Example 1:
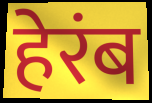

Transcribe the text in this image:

हेरंब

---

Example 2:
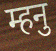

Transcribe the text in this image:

म्हनु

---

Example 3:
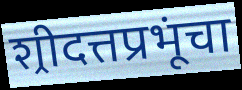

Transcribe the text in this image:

श्रीदत्तप्रभूंचा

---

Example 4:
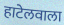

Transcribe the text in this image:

हाटेलवाला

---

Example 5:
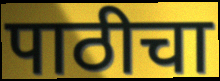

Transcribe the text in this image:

पाठीचा